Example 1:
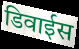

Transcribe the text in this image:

डिवाईस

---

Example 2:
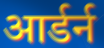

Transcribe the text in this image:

आर्डर्न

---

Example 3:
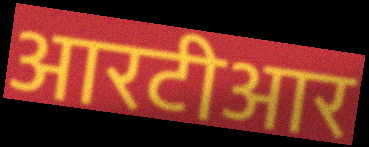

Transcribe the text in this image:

आरटीआर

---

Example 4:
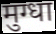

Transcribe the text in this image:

मुग्धा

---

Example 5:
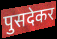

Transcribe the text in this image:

पुसदेकर